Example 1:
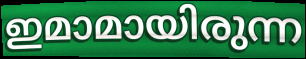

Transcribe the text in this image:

ഇമാമായിരുന്ന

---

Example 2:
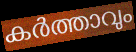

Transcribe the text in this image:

കർത്താവും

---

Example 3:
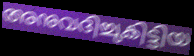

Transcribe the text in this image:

അനുവദിച്ചുകിട്ടിയ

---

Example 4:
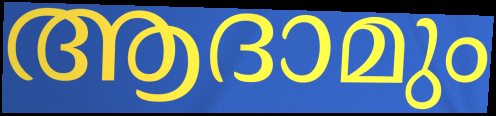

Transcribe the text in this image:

ആദാമും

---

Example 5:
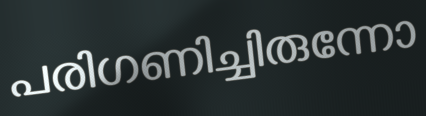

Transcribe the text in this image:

പരിഗണിച്ചിരുന്നോ